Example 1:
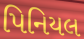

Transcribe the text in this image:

પિનિયલ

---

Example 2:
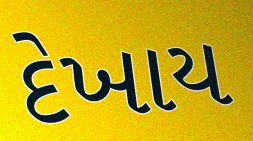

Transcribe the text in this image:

દેખાય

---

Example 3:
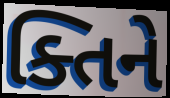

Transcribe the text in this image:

ક્તિને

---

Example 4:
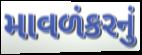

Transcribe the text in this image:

માવળંકરનું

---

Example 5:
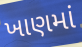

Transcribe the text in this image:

ખાણમાં